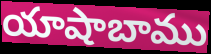
యాషాబాము